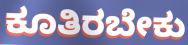
ಕೂತಿರಬೇಕು